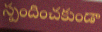
స్పందించకుండా